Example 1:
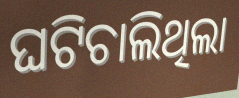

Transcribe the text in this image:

ଘଟିଚାଲିଥିଲା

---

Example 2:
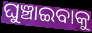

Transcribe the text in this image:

ଘୁଞ୍ଚାଇବାକୁ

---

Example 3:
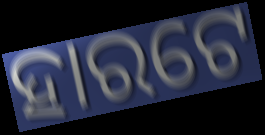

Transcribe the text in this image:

ହାରଟେ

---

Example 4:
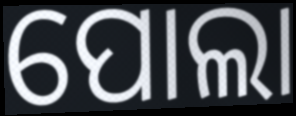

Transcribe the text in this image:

ପୋଲା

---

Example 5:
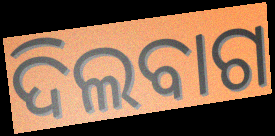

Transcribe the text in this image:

ଦିଲବାଗ